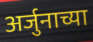
अर्जुनाच्या